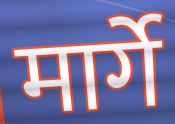
मार्गे